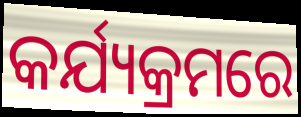
କର୍ଯ୍ୟକ୍ରମରେ